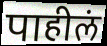
पाहीलं